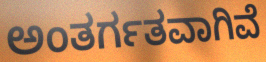
ಅಂತರ್ಗತವಾಗಿವೆ